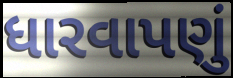
ધારવાપણું